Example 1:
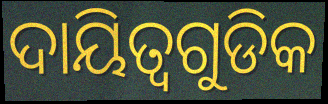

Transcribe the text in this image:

ଦାୟିତ୍ୱଗୁଡିକ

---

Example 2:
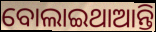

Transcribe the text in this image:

ବୋଲାଇଥାଆନ୍ତି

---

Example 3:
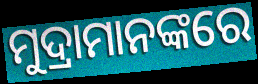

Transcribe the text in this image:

ମୁଦ୍ରାମାନଙ୍କରେ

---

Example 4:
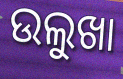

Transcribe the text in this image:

ଉଲୁଖା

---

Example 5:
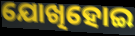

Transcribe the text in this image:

ଯୋଖିହୋଇ